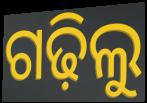
ଗଢ଼ିଲୁ